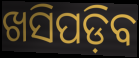
ଖସିପଡ଼ିବ